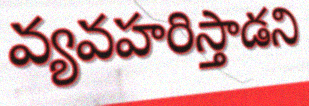
వ్యవహరిస్తాడని